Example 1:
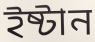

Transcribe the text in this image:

ইষ্টান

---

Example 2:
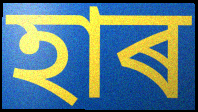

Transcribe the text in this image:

হাৰ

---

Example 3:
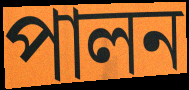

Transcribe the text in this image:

পালন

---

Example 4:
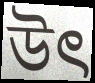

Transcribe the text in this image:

উৎ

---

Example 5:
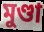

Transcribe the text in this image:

মুণ্ডা